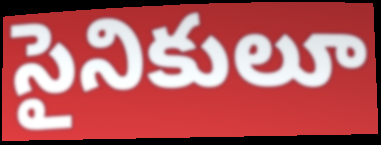
సైనికులూ